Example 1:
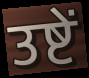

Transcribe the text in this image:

उष्टें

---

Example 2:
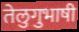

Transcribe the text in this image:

तेलुगुभाषी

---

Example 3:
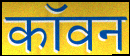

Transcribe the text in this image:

कॉवन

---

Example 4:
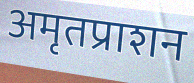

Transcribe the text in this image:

अमृतप्राशन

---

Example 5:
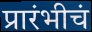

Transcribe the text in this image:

प्रारंभीचं